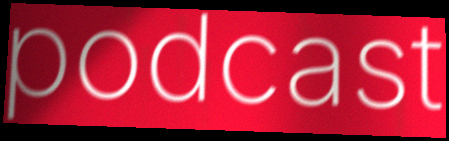
podcast